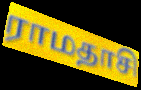
ராமதாசி